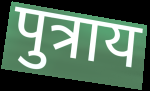
पुत्राय